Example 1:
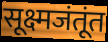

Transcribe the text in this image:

सूक्ष्मजंतूंत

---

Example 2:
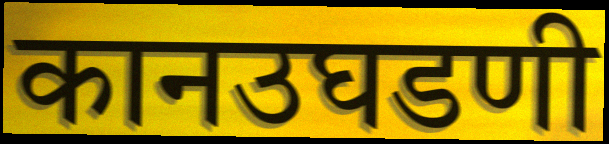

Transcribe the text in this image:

कानउघडणी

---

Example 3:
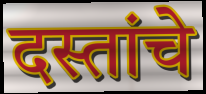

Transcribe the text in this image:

दस्तांचे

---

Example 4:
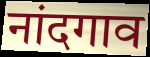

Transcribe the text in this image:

नांदगाव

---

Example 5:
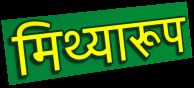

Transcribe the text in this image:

मिथ्यारूप